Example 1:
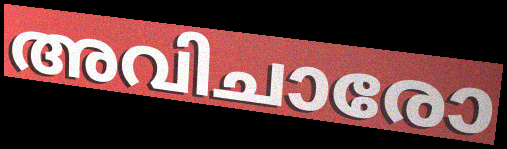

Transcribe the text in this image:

അവിചാരോ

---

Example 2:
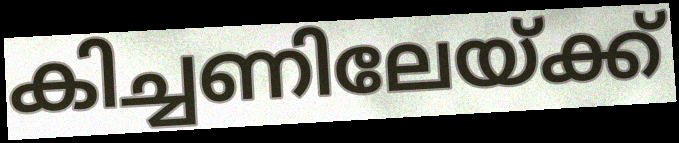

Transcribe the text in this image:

കിച്ചണിലേയ്ക്ക്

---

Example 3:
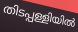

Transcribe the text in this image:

തിടപ്പള്ളിയിൽ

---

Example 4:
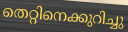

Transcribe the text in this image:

തെറ്റിനെക്കുറിച്ചു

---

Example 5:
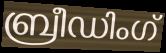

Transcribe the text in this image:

ബ്രീഡിംഗ്